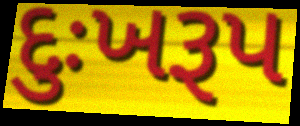
દુઃખરૂપ